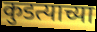
कुडत्याच्या